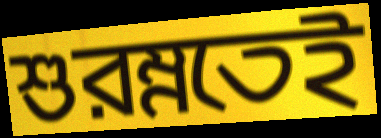
শুরম্নতেই